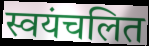
स्वयंचलित